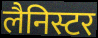
लैनिस्टर